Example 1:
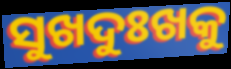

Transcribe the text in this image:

ସୁଖଦୁଃଖକୁ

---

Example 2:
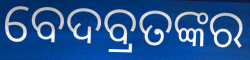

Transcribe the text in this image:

ବେଦବ୍ରତଙ୍କର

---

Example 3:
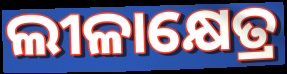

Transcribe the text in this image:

ଲୀଳାକ୍ଷେତ୍ର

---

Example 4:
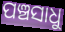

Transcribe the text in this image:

ପଞ୍ଚସାଧୁ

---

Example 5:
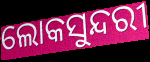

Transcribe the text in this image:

ଲୋକସୁନ୍ଦରୀ